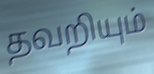
தவறியும்